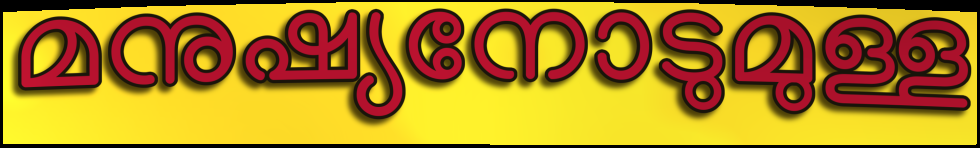
മനുഷ്യനോടുമുള്ള